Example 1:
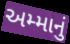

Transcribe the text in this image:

અમ્માનું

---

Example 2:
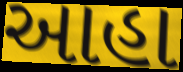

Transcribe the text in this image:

આહા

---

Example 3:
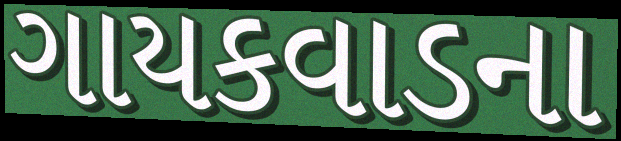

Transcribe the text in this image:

ગાયકવાડના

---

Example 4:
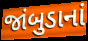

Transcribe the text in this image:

જાંબુડાનાં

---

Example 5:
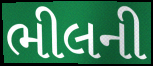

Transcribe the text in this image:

ભીલની